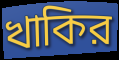
খাকির